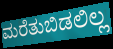
ಮರೆತುಬಿಡಲಿಲ್ಲ